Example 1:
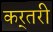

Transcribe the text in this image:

कर्तरी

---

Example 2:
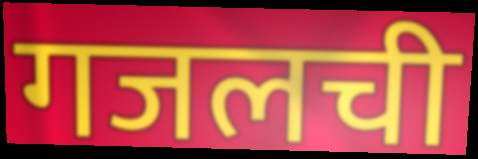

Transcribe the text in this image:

गजलची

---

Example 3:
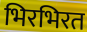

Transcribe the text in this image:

भिरभिरत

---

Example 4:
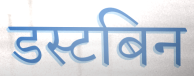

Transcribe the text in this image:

डस्टबिन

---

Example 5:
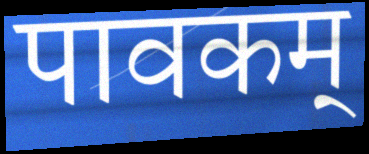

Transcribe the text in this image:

पावकम्